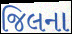
જિલના